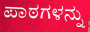
ಪಾಠಗಳನ್ನು